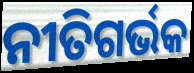
ନୀତିଗର୍ଭକ